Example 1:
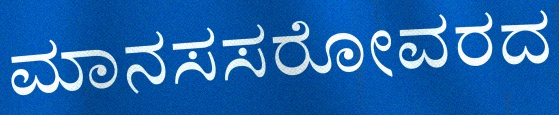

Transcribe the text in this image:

ಮಾನಸಸರೋವರದ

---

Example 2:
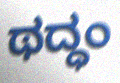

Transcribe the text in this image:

ಥದ್ಧಂ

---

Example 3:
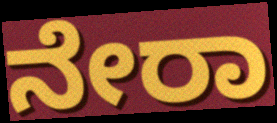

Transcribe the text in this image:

ನೇರಾ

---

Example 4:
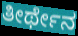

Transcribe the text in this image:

ತೀರ್ಥೇನ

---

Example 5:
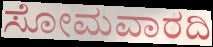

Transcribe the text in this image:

ಸೋಮವಾರದಿ